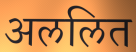
अललित